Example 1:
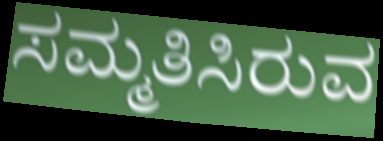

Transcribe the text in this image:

ಸಮ್ಮತಿಸಿರುವ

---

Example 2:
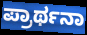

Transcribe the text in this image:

ಪ್ರಾರ್ಥನಾ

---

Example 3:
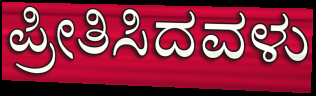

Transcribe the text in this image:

ಪ್ರೀತಿಸಿದವಳು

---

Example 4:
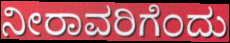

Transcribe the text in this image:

ನೀರಾವರಿಗೆಂದು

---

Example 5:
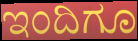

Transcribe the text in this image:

ಇಂದಿಗೂ